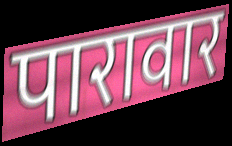
पारावार